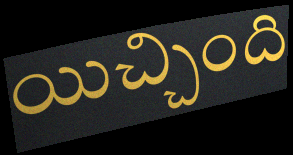
యిచ్చింది